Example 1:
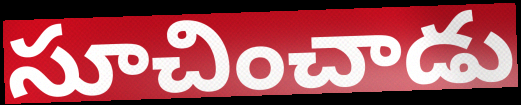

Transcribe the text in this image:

సూచించాడు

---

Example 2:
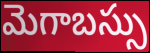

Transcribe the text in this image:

మెగాబస్సు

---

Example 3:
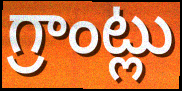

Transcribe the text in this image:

గ్రాంట్లు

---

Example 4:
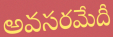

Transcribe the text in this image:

అవసరమేదీ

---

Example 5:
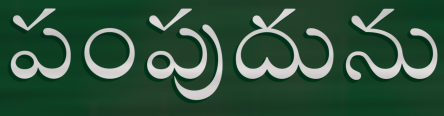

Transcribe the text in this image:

పంపుదును